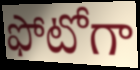
ఫోటోగా